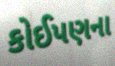
કોઈપણના